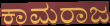
ಕಾಮರಾಜ